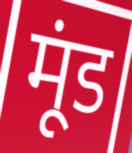
मूंड